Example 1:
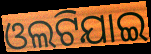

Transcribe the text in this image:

ଓଲଟିଯାଇ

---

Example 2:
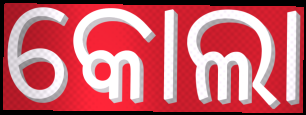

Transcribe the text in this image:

କୋଲା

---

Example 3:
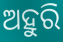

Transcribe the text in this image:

ଅହୁରି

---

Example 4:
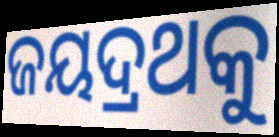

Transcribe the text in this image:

ଜୟଦ୍ରଥକୁ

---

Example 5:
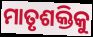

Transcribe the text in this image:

ମାତୃଶକ୍ତିକୁ